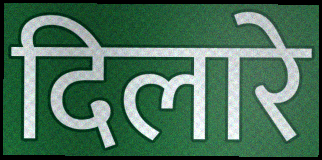
दिलारे